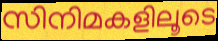
സിനിമകളിലൂടെ